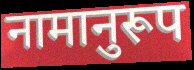
नामानुरूप